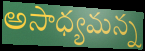
అసాధ్యమన్న